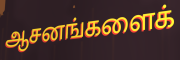
ஆசனங்களைக்